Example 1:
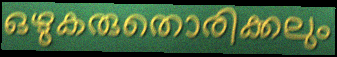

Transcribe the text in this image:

ഒഴുകരുതൊരിക്കലും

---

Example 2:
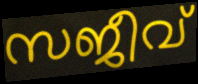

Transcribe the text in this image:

സജീവ്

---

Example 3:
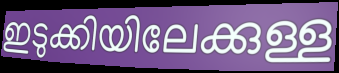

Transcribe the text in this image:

ഇടുക്കിയിലേക്കുള്ള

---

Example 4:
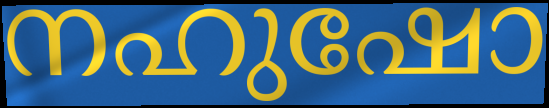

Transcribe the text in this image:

നഹുഷോ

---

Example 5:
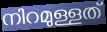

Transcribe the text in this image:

നിറമുള്ളത്